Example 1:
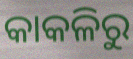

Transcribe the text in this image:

କାକଳିରୁ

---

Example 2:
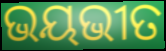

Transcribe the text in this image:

ଭୟଭୀତ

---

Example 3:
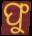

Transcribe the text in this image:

ଫୁ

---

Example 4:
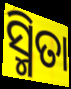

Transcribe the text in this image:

ସ୍ମିତା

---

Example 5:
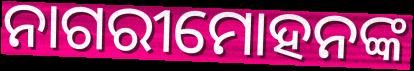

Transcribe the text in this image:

ନାଗରୀମୋହନଙ୍କ